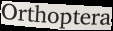
Orthoptera